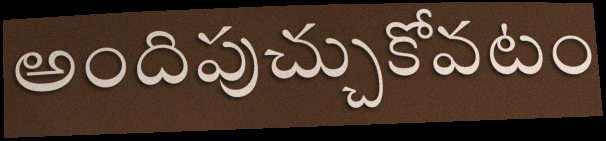
అందిపుచ్చుకోవటం